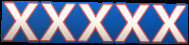
xxxxx